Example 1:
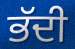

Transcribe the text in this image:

ਭੱਦੀ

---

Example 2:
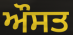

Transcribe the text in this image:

ਔਸਤ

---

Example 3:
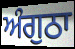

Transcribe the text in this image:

ਅੰਗੁਠਾ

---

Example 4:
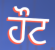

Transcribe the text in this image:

ਹੌਟ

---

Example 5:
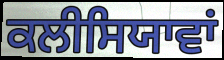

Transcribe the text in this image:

ਕਲੀਸਿਯਾਵਾਂ